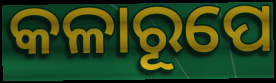
କଳାରୂପେ